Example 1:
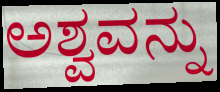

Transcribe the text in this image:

ಅಶ್ವವನ್ನು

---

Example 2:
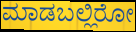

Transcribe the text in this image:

ಮಾಡಬಲ್ಲಿರೋ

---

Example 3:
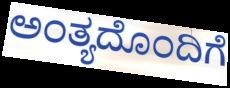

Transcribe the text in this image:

ಅಂತ್ಯದೊಂದಿಗೆ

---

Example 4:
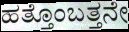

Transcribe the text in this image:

ಹತ್ತೊಂಬತ್ತನೇ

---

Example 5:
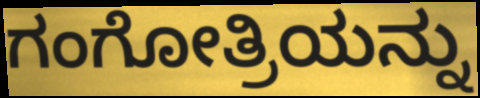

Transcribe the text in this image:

ಗಂಗೋತ್ರಿಯನ್ನು